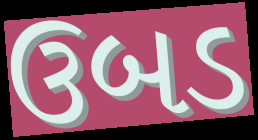
ઉબડ